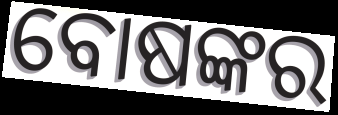
ବୋଷଙ୍କର